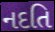
નદતિ